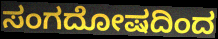
ಸಂಗದೋಷದಿಂದ